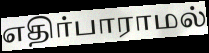
எதிர்பாராமல்